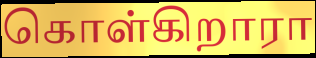
கொள்கிறாரா